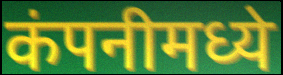
कंपनीमध्ये